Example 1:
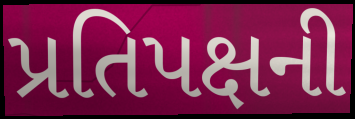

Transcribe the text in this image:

પ્રતિપક્ષની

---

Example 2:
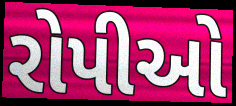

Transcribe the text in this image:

રોપીઓ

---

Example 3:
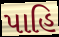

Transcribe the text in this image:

પાહિ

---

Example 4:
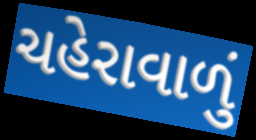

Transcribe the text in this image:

ચહેરાવાળું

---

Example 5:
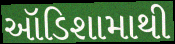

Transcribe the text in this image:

ઑડિશામાથી